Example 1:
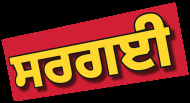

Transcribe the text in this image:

ਸਰਗਈ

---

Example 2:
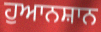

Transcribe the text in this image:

ਹੁਆਨਸ਼ਾਨ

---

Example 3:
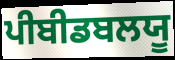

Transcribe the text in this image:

ਪੀਬੀਡਬਲਯੂ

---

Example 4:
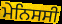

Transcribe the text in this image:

ਮੇਨਿਸਸੀ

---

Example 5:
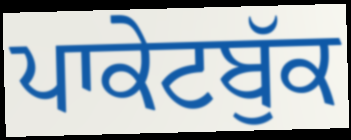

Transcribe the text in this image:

ਪਾਕੇਟਬੁੱਕ